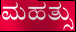
ಮಹತ್ಸು